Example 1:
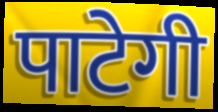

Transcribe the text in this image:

पाटेगी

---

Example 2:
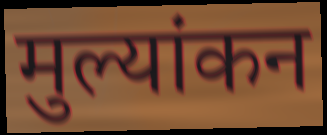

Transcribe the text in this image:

मुल्यांकन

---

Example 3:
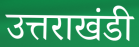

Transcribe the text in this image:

उत्तराखंडी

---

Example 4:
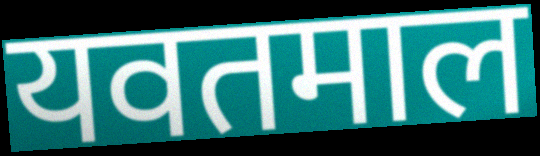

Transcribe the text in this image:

यवतमाल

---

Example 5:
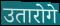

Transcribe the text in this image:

उतारोगे